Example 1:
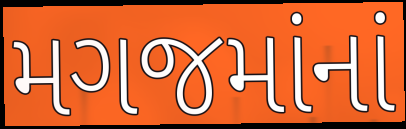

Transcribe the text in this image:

મગજમાંનાં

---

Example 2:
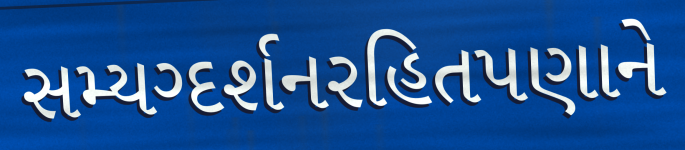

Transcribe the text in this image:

સમ્યગ્દર્શનરહિતપણાને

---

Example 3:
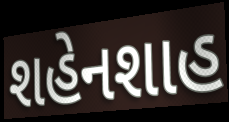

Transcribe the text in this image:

શહેનશાહ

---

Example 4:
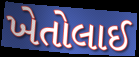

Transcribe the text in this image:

ખેતોલાઈ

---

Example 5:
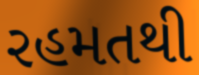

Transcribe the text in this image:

રહમતથી